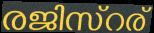
രജിസ്റര്